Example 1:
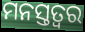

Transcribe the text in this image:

ମନସ୍ତତ୍ଵର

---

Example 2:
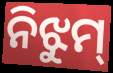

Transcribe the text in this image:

ନିଝୁମ୍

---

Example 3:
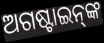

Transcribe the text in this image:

ଅଗଷ୍ଟାଇନ୍‌ଙ୍କ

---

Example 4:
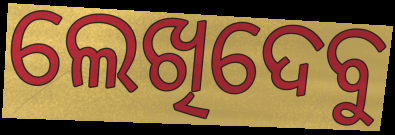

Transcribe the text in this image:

ଲେଖିଦେବୁ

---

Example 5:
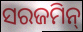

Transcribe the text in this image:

ସରଜମିନ୍